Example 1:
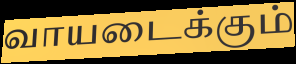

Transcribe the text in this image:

வாயடைக்கும்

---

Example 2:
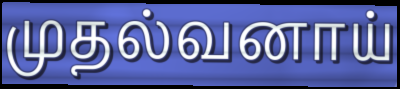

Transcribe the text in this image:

முதல்வனாய்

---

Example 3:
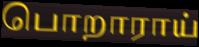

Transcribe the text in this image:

பொறாராய்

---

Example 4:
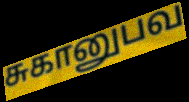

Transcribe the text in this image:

சுகானுபவ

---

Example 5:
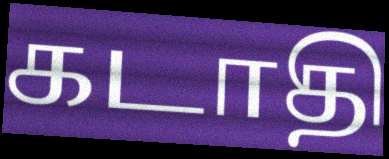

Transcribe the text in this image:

கடாதி